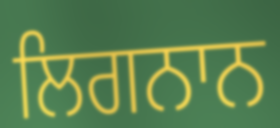
ਲਿਗਨਾਨ